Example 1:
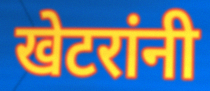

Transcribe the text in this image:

खेटरांनी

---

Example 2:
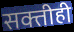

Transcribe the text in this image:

सक्तीही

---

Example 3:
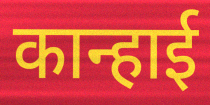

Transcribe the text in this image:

कान्हाई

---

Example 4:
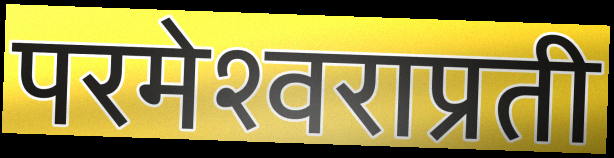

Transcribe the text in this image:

परमेश्वराप्रती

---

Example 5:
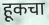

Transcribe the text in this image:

हूकचा